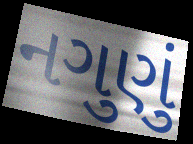
નગુણું